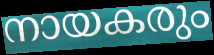
നായകരും